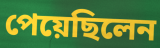
পেয়েছিলেন